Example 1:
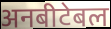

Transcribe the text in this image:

अनबीटेबल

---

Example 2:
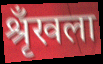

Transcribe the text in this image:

श्रृँखला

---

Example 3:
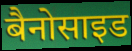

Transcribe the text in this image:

बैनोसाइड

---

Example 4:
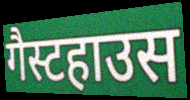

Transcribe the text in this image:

गैस्टहाउस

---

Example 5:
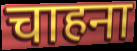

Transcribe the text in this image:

चाहना